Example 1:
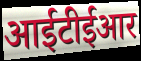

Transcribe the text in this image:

आईटीईआर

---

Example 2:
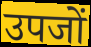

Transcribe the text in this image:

उपजों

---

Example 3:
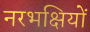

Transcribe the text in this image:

नरभक्षियों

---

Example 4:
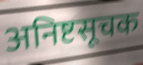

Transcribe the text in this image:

अनिष्टसूचक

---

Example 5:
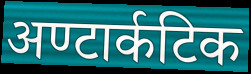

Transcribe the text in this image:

अण्टार्कटिक